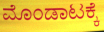
ಮೊಂಡಾಟಕ್ಕೆ